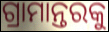
ଗ୍ରାମାନ୍ତରକୁ